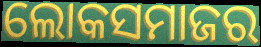
ଲୋକସମାଜର